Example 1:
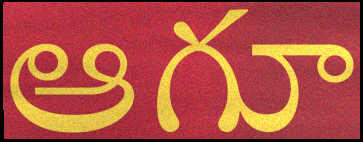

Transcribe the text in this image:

ఆగూ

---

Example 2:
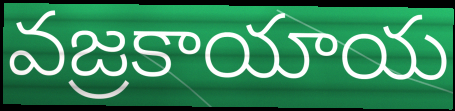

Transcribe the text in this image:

వజ్రకాయాయ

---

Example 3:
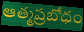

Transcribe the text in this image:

ఆత్మప్రబోధం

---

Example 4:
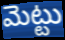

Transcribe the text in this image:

మెట్టు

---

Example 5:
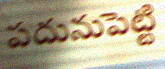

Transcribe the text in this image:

పదునుపెట్టి